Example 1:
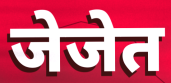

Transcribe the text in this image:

जेजेत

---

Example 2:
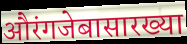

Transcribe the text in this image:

औरंगजेबासारख्या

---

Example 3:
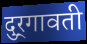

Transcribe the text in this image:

दुर्गावती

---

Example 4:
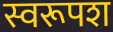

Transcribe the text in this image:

स्वरूपश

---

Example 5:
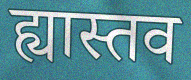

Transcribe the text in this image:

ह्यास्तव